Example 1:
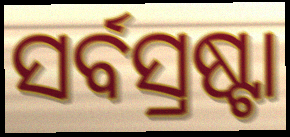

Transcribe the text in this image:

ସର୍ବସ୍ରଷ୍ଟା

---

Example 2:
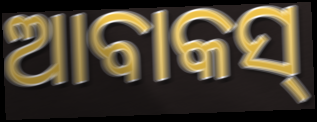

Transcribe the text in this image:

ଆବାକସ୍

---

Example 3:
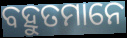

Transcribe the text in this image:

ବହୁତମାନେ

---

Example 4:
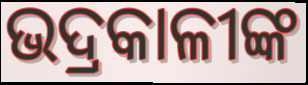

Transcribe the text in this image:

ଭଦ୍ରକାଳୀଙ୍କ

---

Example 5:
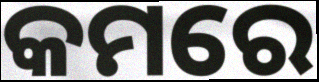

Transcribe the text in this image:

କମରେ